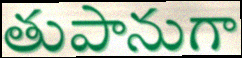
తుపానుగా